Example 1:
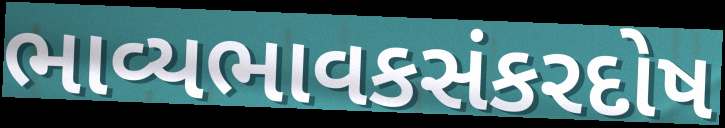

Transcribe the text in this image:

ભાવ્યભાવકસંકરદોષ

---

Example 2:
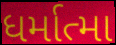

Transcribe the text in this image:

ધર્માત્મા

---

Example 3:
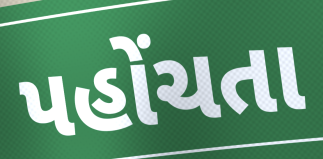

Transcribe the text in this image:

પહોંચતા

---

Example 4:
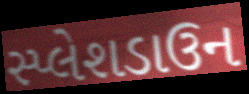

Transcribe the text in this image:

સ્પ્લેશડાઉન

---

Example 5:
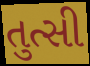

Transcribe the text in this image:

તુત્સી